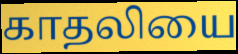
காதலியை